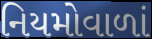
નિયમોવાળાં